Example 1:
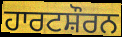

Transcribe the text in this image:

ਹਾਰਟਸ਼ੌਰਨ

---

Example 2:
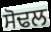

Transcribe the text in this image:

ਸੋਢਲ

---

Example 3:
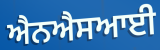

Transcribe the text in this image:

ਐਨਐਸਆਈ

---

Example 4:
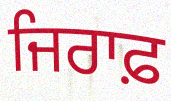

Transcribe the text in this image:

ਜਿਰਾਫ਼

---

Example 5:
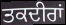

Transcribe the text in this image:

ਤਕਦੀਰਾਂ